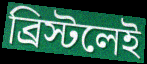
ব্রিস্টলেই